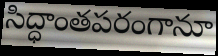
సిద్ధాంతపరంగానూ